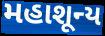
મહાશૂન્ય